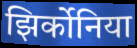
झिर्कोनिया